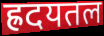
ह्रदयतल